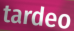
tardeo